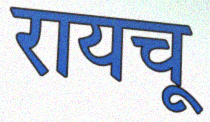
रायचू